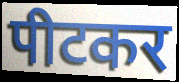
पीटकर